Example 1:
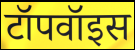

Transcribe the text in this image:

टॉपवॉइस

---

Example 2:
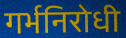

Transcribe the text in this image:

गर्भनिरोधी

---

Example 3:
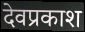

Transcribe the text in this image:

देवप्रकाश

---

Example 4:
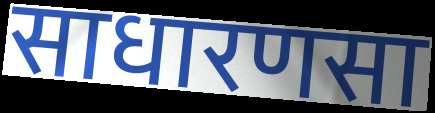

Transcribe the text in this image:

साधारणसा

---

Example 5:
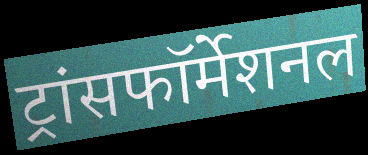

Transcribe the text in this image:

ट्रांसफॉर्मेशनल